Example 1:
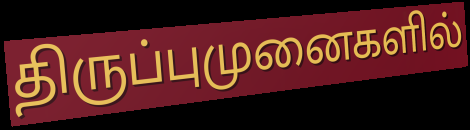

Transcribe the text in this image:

திருப்புமுனைகளில்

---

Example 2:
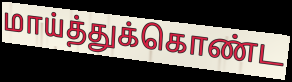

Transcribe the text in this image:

மாய்த்துக்கொண்ட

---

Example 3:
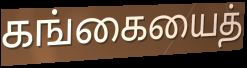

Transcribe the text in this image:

கங்கையைத்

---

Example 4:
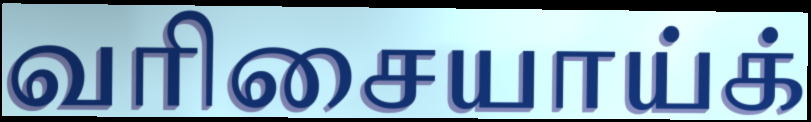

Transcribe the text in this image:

வரிசையாய்க்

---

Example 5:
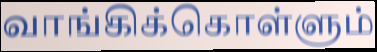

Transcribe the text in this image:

வாங்கிக்கொள்ளும்